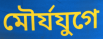
মৌর্যযুগে